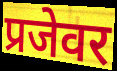
प्रजेवर